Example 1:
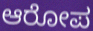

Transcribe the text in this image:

ಆರೋಪ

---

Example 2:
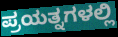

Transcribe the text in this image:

ಪ್ರಯತ್ನಗಳಲ್ಲಿ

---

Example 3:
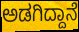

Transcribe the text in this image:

ಅಡಗಿದ್ದಾನೆ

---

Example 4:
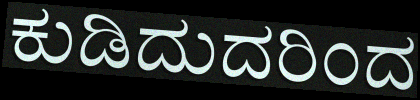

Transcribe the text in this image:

ಕುಡಿದುದರಿಂದ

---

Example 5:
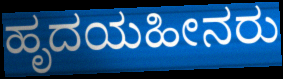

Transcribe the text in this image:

ಹೃದಯಹೀನರು